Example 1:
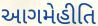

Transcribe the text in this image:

આગમેહીતિ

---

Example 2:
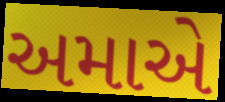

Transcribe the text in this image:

અમાએ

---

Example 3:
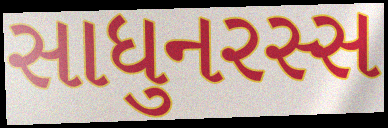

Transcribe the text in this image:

સાધુનરસ્સ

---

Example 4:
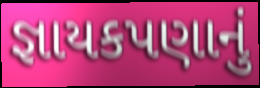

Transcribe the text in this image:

જ્ઞાયકપણાનું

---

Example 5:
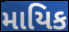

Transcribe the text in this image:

માયિક